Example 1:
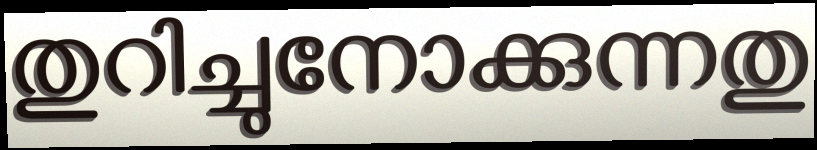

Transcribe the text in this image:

തുറിച്ചുനോക്കുന്നതു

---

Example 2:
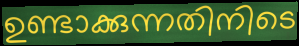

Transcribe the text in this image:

ഉണ്ടാക്കുന്നതിനിടെ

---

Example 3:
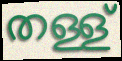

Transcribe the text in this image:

തള്ള്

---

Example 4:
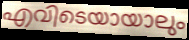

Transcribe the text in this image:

എവിടെയായാലും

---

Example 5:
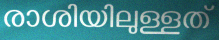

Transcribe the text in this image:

രാശിയിലുള്ളത്